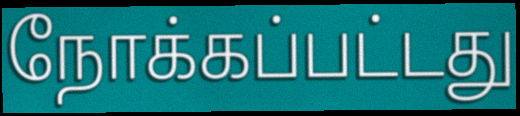
நோக்கப்பட்டது